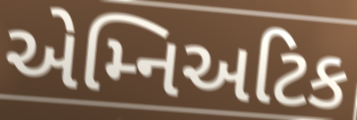
એમ્નિઅટિક